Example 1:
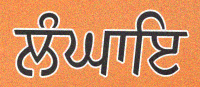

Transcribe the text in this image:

ਲੰਘਾਇ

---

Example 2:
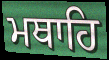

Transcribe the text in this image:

ਮਥਾਹਿ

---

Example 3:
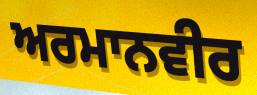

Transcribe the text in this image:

ਅਰਮਾਨਵੀਰ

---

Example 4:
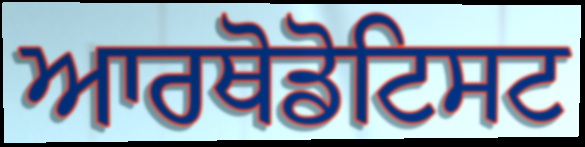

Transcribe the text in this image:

ਆਰਥੋਡੋਟਿਸਟ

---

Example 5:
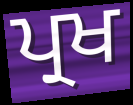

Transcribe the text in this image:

ਪ੍ਰਖ